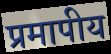
प्रमापीय